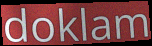
doklam